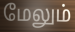
மேலும்